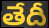
తేదీ